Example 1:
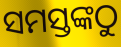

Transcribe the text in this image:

ସମସ୍ତଙ୍କଠୁ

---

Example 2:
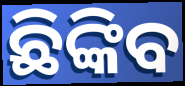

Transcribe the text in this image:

ଛିଙ୍କିବ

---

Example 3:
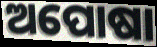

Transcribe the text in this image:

ଅପୋଷା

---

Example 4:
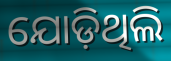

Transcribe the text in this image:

ଯୋଡ଼ିଥିଲି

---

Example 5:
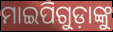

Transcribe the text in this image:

ମାଇପିଗୁଡ଼ାଙ୍କୁ